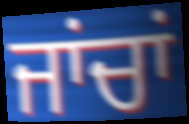
ਜਾਂਚਾਂ